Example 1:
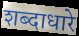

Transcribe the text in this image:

शब्दाधारे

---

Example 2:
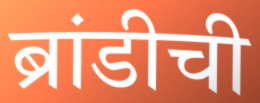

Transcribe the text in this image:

ब्रांडीची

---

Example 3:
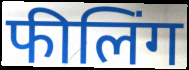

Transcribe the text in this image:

फीलिंग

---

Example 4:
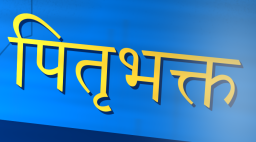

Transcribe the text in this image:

पितृभक्त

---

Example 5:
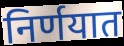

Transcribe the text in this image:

निर्णयात